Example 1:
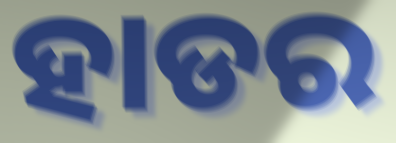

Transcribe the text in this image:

ହାଡର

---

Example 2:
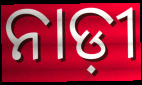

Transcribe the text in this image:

ନାଡ଼ୀ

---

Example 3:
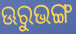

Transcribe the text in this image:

ଊରୁଭଙ୍ଗ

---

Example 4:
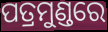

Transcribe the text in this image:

ପତ୍ରମୁଣ୍ଡରେ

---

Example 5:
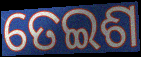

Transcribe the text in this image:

ତେଇଶ